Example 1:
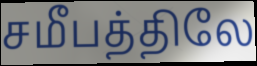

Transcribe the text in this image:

சமீபத்திலே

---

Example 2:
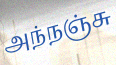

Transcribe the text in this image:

அந்நஞ்சு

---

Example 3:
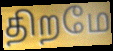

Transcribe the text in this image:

திறமே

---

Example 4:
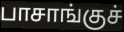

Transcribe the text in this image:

பாசாங்குச்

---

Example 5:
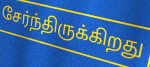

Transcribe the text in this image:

சேர்ந்திருக்கிறது